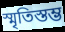
স্মৃতিস্তম্ভ